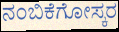
ನಂಬಿಕೆಗೋಸ್ಕರ